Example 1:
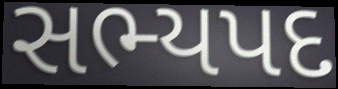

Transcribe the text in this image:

સભ્યપદ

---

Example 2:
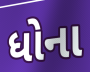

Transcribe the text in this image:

ધોના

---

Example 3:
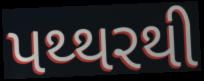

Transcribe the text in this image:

પથ્થરથી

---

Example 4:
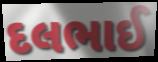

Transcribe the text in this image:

દલભાઈ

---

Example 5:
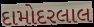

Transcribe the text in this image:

દામોદરલાલ